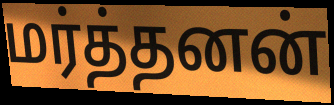
மர்த்தனன்